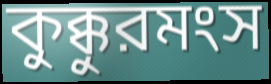
কুক্কুরমংস